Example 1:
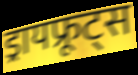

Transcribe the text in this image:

ड्रायफ्रूट्स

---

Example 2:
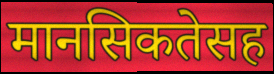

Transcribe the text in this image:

मानसिकतेसह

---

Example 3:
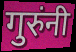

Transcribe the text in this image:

गुरुंनी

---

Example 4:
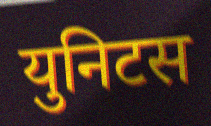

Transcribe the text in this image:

युनिटस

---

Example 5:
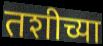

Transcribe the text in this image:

तशीच्या